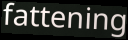
fattening